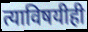
त्याविषयीही